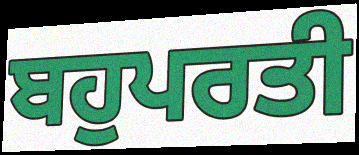
ਬਹੁਪਰਤੀ